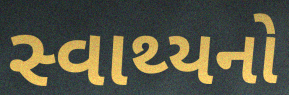
સ્વાથ્યનો